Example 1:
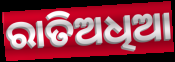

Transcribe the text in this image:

ରାତିଅଧିଆ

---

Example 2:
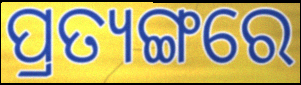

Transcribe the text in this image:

ପ୍ରତ୍ୟଙ୍ଗରେ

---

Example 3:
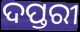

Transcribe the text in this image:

ଦପ୍ତରୀ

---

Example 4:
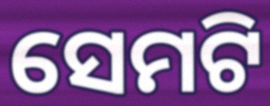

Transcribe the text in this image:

ସେମଟି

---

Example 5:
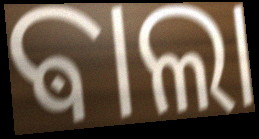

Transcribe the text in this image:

ଵାଲା